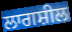
ਲਾਗਸ਼ੀਲ